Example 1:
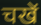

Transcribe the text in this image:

चखें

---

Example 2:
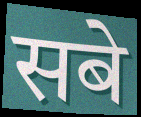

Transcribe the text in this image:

सबे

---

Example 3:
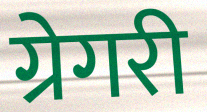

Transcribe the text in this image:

ग्रेगरी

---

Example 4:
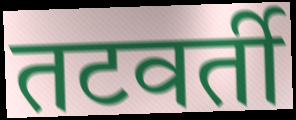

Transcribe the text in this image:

तटवर्ती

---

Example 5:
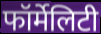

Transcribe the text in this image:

फॉर्मेलिटी